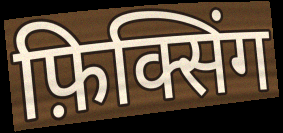
फ़िक्सिंग